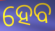
ହେବ